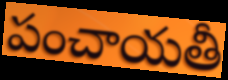
పంచాయతీ